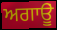
ਅਗਾਊੂਂ